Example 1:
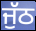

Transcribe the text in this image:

ਜੁੱਠ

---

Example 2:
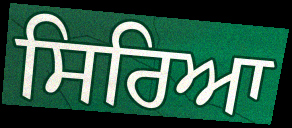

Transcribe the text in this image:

ਸਿਰਿਆ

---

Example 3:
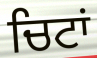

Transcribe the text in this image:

ਚਿਟਾਂ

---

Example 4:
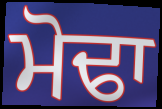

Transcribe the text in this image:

ਮੋਢਾ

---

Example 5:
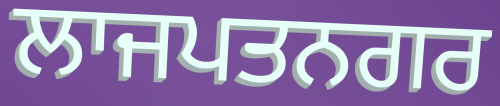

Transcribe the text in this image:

ਲਾਜਪਤਨਗਰ